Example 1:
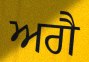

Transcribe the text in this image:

ਅਗੈ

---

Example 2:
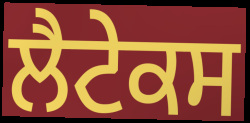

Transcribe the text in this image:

ਲੈਟੇਕਸ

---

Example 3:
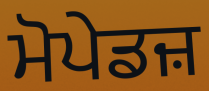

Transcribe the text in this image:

ਮੋਪੇਡਜ਼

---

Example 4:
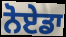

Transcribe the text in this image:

ਨੋਏਡਾ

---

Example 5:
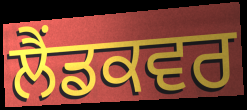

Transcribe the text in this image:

ਲੈਂਡਕਵਰ